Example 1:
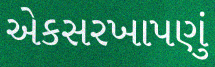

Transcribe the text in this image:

એકસરખાપણું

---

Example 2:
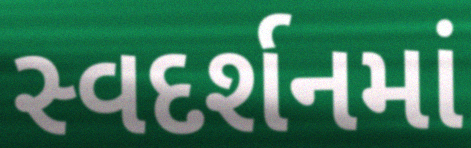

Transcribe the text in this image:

સ્વદર્શનમાં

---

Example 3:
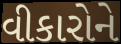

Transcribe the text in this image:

વીકારોને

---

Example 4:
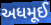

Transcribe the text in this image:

અધમૂઈ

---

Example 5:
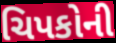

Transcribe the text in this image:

ચિપકોની